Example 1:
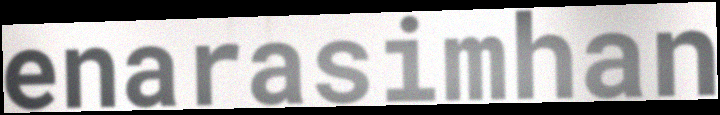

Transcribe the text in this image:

enarasimhan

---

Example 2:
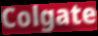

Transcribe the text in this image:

Colgate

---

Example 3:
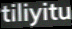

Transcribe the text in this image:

tiliyitu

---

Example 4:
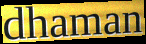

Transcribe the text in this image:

dhaman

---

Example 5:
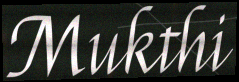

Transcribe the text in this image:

Mukthi